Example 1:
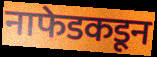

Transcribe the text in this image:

नाफेडकडून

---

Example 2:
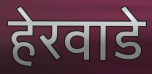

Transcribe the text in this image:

हेरवाडे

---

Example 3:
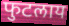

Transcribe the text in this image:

फुटलाय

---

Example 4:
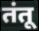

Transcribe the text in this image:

तंतू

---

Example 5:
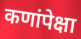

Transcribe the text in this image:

कणांपेक्षा